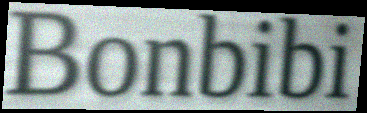
Bonbibi